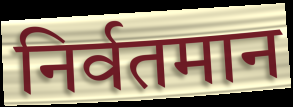
निर्वतमान